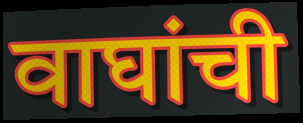
वाघांची